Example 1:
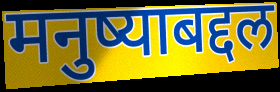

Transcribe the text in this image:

मनुष्याबद्दल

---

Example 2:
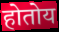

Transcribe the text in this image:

होतोय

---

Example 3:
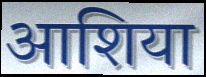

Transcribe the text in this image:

आशिया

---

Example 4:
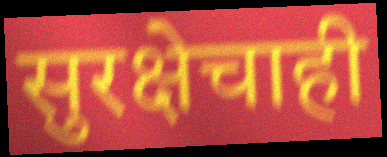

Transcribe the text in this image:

सुरक्षेचाही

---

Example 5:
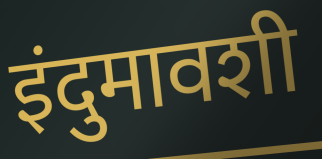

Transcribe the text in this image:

इंदुमावशी